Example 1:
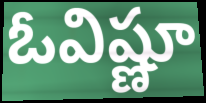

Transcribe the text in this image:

ఓవిష్ణూ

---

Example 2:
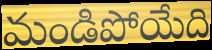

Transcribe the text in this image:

మండిపోయేది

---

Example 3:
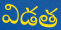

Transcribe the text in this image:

విడత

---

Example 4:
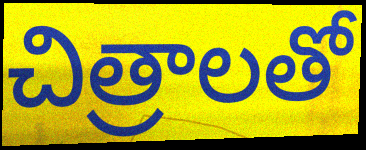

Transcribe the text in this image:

చిత్రాలతో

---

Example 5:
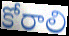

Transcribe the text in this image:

కోరాలి